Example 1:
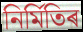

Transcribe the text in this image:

নিৰ্মিতিৰ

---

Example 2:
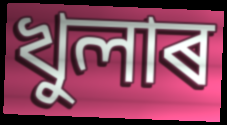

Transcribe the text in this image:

খুলাৰ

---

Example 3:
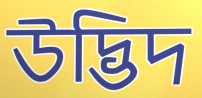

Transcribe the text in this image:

উদ্ভিদ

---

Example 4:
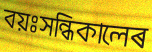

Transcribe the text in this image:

বয়ঃসন্ধিকালেৰ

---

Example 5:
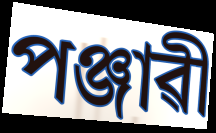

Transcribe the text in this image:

পঞ্জাৱী